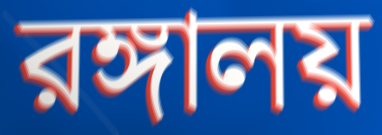
রঙ্গালয়